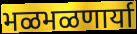
भळभळणार्या